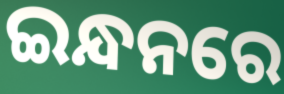
ଇନ୍ଧନରେ